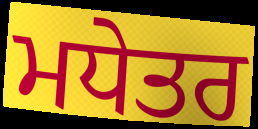
ਮਧੇਤਰ